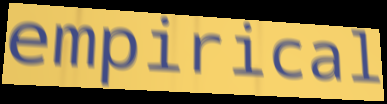
empirical